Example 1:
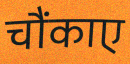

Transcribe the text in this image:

चौंकाए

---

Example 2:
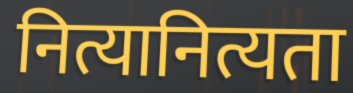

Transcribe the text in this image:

नित्यानित्यता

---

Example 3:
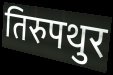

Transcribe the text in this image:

तिरुपथुर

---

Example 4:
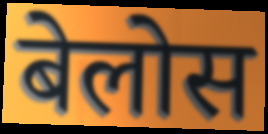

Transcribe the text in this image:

बेलोस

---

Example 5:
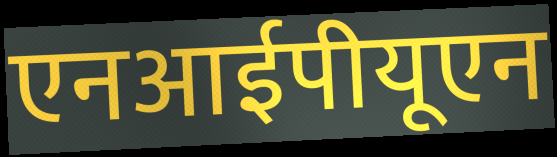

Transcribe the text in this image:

एनआईपीयूएन